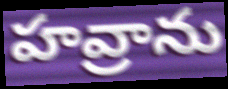
హవ్రాను